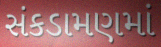
સંકડામણમાં